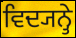
ਵਿਦ੍ਯਨ੍ਤੇ